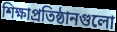
শিক্ষাপ্রতিষ্ঠানগুলো